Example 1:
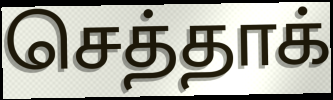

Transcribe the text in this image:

செத்தாக்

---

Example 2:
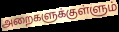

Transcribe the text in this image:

அறைகளுக்குள்ளும்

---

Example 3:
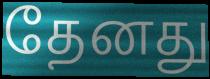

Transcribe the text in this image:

தேனது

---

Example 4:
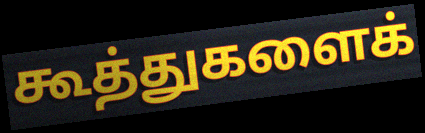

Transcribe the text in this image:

கூத்துகளைக்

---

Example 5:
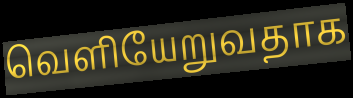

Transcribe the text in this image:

வெளியேறுவதாக